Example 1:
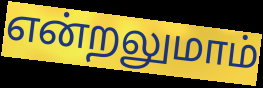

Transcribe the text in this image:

என்றலுமாம்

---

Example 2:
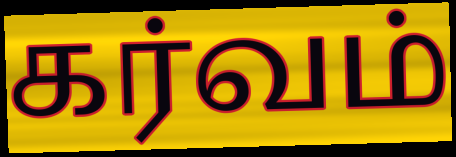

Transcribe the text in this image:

கர்வம்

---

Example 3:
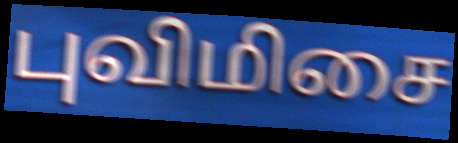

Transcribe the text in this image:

புவிமிசை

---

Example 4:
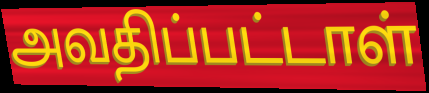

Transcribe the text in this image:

அவதிப்பட்டாள்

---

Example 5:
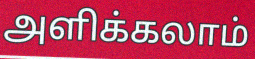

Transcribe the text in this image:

அளிக்கலாம்